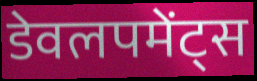
डेवलपमेंट्स